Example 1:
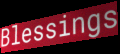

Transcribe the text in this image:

Blessings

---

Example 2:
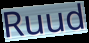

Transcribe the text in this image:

Ruud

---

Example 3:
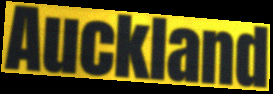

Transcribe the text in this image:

Auckland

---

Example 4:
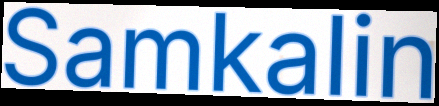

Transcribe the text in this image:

Samkalin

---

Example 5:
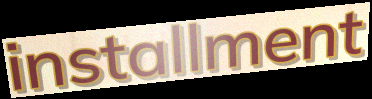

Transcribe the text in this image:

installment